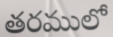
తరములో